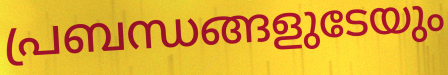
പ്രബന്ധങ്ങളുടേയും